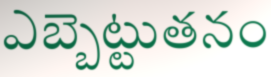
ఎబ్బెట్టుతనం